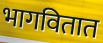
भागवितात